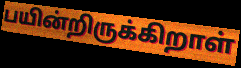
பயின்றிருக்கிறாள்